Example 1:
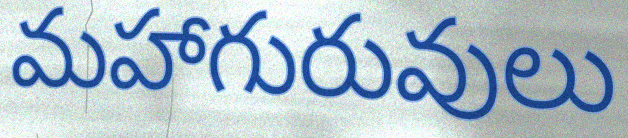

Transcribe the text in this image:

మహాగురువులు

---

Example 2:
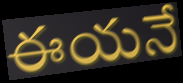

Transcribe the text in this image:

ఈయనే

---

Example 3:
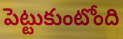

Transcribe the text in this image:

పెట్టుకుంటోంది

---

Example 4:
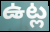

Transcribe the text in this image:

ఉట్ల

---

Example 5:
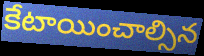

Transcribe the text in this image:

కేటాయించాల్సిన